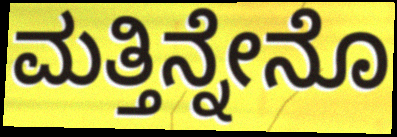
ಮತ್ತಿನ್ನೇನೊ